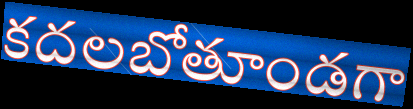
కదలబోతూండగా